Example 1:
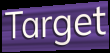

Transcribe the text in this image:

Target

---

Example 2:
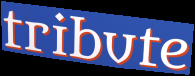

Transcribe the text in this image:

tribute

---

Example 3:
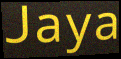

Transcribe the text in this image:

Jaya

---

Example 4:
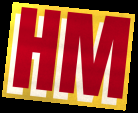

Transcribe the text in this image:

HM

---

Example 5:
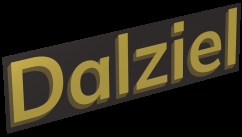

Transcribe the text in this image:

Dalziel